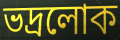
ভদ্ৰলোক